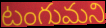
టంగుమని